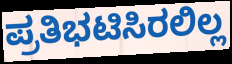
ಪ್ರತಿಭಟಿಸಿರಲಿಲ್ಲ